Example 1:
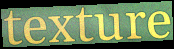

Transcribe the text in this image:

texture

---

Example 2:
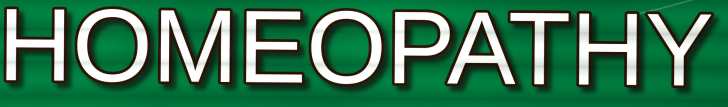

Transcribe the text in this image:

HOMEOPATHY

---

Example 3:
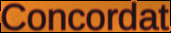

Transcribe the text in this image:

Concordat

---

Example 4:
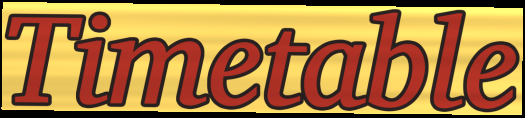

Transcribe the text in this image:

Timetable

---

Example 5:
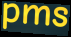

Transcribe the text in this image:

pms